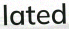
lated